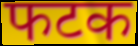
फटक